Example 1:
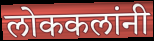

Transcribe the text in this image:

लोककलांनी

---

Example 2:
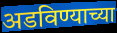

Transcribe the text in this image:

अडविण्याच्या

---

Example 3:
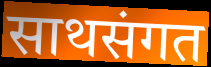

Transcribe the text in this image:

साथसंगत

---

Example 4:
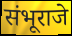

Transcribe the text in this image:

संभूराजे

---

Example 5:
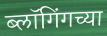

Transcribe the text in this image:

ब्लॉगिंगच्या